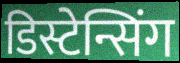
डिस्टेन्सिंग